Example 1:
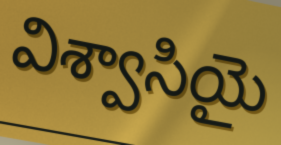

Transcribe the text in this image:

విశ్వాసియై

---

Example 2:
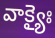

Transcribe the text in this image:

వాక్యైః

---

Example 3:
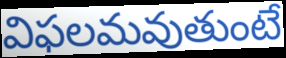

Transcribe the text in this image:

విఫలమవుతుంటే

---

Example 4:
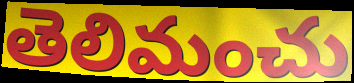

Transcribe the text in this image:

తెలిమంచు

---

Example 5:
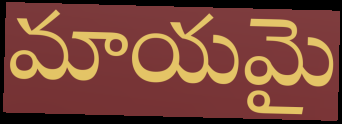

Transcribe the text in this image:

మాయమై